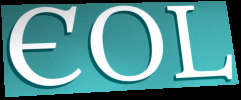
EOL